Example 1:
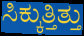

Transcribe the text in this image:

ಸಿಕ್ಕುತ್ತಿತ್ತು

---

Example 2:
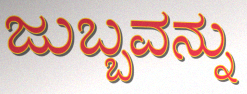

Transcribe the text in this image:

ಜುಬ್ಬವನ್ನು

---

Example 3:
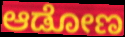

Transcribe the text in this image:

ಆಡೋಣ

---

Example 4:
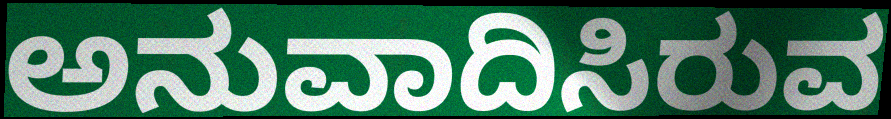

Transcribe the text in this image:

ಅನುವಾದಿಸಿರುವ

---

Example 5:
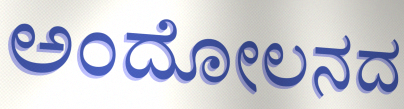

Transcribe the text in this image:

ಅಂದೋಲನದ